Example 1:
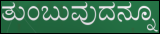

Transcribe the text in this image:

ತುಂಬುವುದನ್ನೂ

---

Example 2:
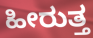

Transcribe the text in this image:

ಹೀರುತ್ತ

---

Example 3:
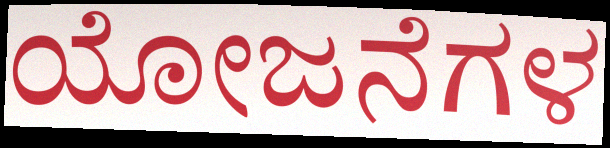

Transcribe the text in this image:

ಯೋಜನೆಗಳ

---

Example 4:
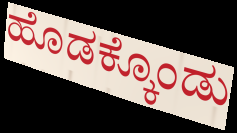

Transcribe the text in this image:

ಹೊಡಕ್ಕೊಂಡು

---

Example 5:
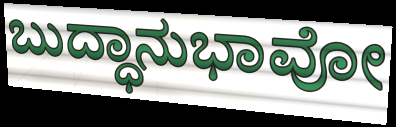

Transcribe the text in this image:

ಬುದ್ಧಾನುಭಾವೋ